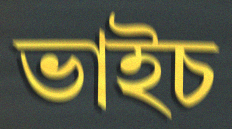
ভাইচ